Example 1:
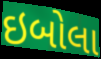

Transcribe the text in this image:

ઇબોલા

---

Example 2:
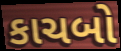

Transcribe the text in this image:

કાચબો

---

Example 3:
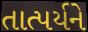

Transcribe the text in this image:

તાત્પર્યને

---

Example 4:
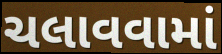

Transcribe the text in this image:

ચલાવવામાં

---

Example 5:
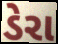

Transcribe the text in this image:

ડેરા